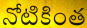
నోటికింత